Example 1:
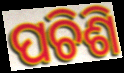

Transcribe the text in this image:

ପଚିଶି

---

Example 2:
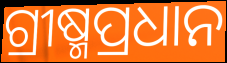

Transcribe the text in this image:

ଗ୍ରୀଷ୍ମପ୍ରଧାନ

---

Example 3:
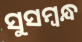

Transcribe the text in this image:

ସୁସମ୍ବନ୍ଧ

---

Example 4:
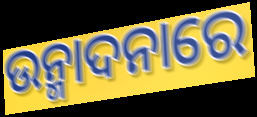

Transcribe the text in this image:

ଉନ୍ମାଦନାରେ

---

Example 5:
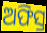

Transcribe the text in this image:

ଅଫିସ୍ର